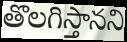
తొలగిస్తానని